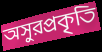
অসুরপ্রকৃতি